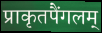
प्राकृतपैंगलम्